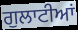
ਗੁਲਾਟੀਆਂ